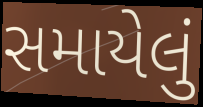
સમાયેલું